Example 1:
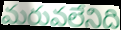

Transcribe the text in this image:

మరువలేనిది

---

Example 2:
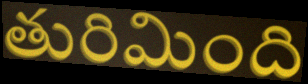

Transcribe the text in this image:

తురిమింది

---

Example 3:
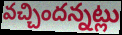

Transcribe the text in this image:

వచ్చిందన్నట్లు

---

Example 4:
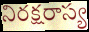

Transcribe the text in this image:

నిరక్షరాస్య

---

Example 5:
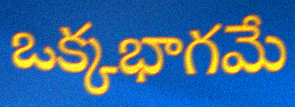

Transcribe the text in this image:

ఒక్కభాగమే